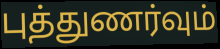
புத்துணர்வும்